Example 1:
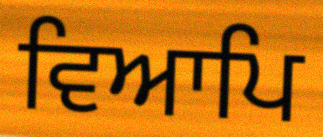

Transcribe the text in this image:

ਵਿਆਪਿ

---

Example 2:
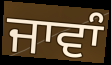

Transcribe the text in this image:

ਜਾਵਾੰ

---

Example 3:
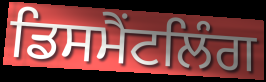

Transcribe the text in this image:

ਡਿਸਮੈਂਟਲਿੰਗ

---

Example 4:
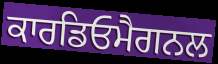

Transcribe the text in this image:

ਕਾਰਡਿਓਮੈਗਨਲ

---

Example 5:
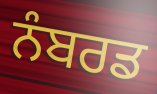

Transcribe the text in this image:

ਨੰਬਰਡ